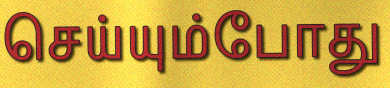
செய்யும்போது